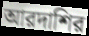
আরদাশির